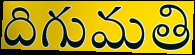
దిగుమతి